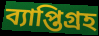
ব্যাপ্তিগ্রহ